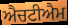
ਐਚਟੀਐਮ